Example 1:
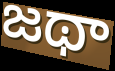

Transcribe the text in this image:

జథా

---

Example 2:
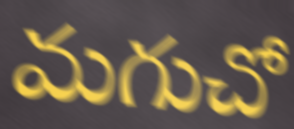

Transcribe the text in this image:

మగుచో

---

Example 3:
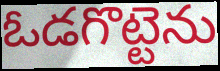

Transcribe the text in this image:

ఓడగొట్టెను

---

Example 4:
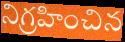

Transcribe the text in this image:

నిగ్రహించిన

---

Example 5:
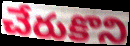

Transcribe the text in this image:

చేరుకొని